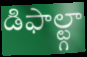
డిఫాల్ట్గా